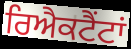
ਰਿਐਕਟੈਂਟਾਂ